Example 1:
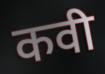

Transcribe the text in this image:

कवी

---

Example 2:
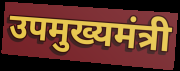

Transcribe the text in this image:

उपमुख्यमंत्री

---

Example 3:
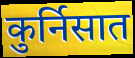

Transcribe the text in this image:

कुर्निसात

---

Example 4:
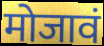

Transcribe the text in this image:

मोजावं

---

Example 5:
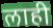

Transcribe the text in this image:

लाही